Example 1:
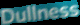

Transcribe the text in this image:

Dullness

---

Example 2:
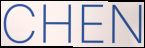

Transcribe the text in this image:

CHEN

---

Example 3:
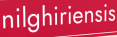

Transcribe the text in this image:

nilghiriensis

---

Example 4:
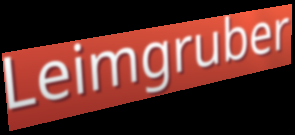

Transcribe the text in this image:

Leimgruber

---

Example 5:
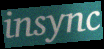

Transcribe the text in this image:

insync